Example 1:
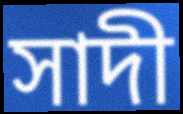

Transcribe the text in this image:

সাদী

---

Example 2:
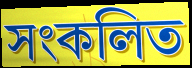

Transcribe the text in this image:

সংকলিত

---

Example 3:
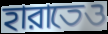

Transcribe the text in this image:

হারাতেও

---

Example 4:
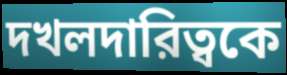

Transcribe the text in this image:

দখলদারিত্বকে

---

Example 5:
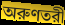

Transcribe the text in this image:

অরুণতরী